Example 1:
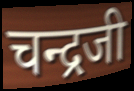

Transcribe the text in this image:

चन्द्रजी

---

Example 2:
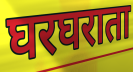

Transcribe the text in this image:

घरघराता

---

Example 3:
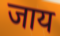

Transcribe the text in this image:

जाय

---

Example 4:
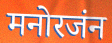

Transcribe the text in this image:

मनोरजंन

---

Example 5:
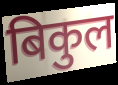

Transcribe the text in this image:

बिकुल